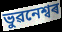
ভুৱনেশ্বৰ